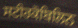
ਸਟੀਰਕੋਬਿਲਿਨ